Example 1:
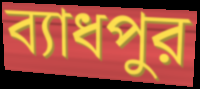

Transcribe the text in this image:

ব্যাধপুর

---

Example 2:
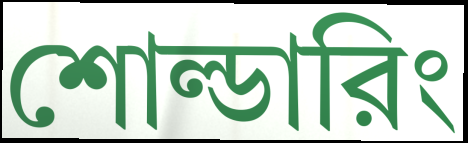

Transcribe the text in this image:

শোল্ডারিং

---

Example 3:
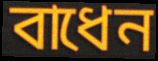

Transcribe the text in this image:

বাধেন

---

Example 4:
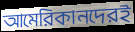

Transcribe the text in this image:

আমেরিকানদেরই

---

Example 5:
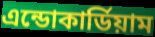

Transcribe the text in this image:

এন্ডোকার্ডিয়াম